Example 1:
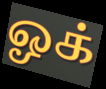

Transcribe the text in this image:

ஓக்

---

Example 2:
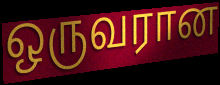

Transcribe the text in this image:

ஒருவரான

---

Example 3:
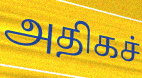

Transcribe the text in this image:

அதிகச்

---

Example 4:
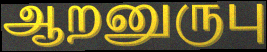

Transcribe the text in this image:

ஆறனுருபு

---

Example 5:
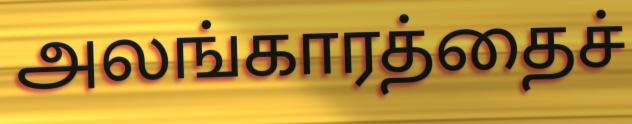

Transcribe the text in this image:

அலங்காரத்தைச்